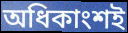
অধিকাংশই